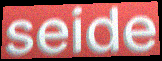
seide